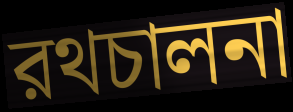
রথচালনা